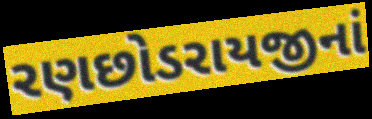
રણછોડરાયજીનાં